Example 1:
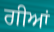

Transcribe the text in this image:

ਗੀਆਂ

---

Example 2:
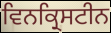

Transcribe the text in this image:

ਵਿਨਕ੍ਰਿਸਟੀਨ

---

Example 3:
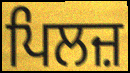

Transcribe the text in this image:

ਪਿਲਜ਼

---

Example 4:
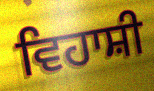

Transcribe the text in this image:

ਵਿਹਾਸ਼ੀ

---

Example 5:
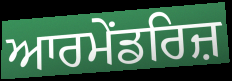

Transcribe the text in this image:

ਆਰਮੇਂਡਰਿਜ਼